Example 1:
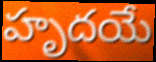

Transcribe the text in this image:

హృదయే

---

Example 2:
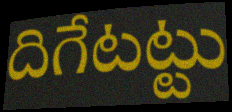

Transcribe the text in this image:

దిగేటట్టు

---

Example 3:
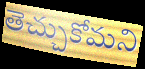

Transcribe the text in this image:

తెచ్చుకోమని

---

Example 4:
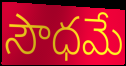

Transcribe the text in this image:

సౌధమే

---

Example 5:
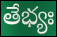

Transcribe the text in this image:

తేభ్యః